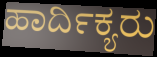
ಹಾರ್ದಿಕ್ಯರು